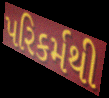
પરિકર્મથી